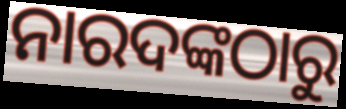
ନାରଦଙ୍କଠାରୁ